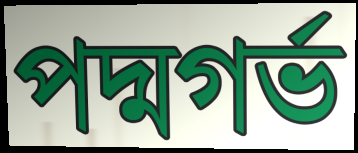
পদ্মগর্ভ